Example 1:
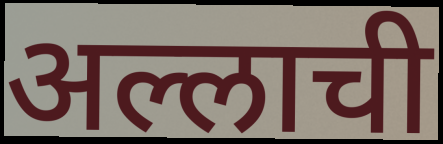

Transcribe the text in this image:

अल्लाची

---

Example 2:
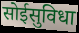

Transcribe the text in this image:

सोईसुविधा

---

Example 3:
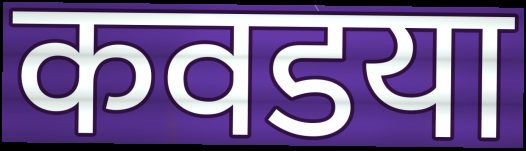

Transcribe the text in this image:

कवडया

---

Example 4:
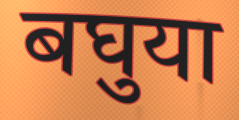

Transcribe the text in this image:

बघुया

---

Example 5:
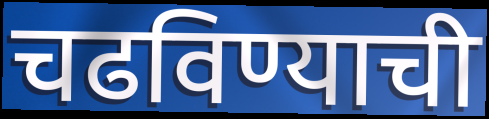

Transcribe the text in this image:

चढविण्याची